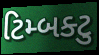
ટિમ્બક્ટુ